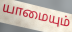
யாமையும்